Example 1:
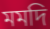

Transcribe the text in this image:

মমদি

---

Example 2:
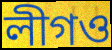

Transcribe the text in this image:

লীগও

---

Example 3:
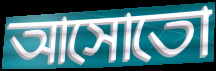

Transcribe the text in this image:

আসোতো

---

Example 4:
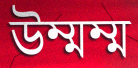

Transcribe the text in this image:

উম্মম্ম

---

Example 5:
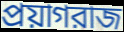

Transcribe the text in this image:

প্রয়াগরাজ